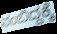
ನಂಬಿದ್ದಕ್ಕೆ